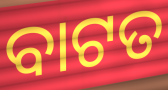
ବାଟତ